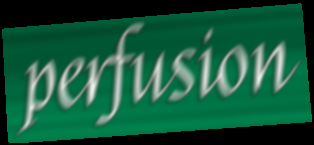
perfusion